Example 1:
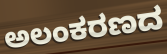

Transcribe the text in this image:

ಅಲಂಕರಣದ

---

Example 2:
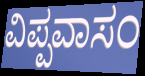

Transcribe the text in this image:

ವಿಪ್ಪವಾಸಂ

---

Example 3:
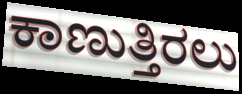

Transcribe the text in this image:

ಕಾಣುತ್ತಿರಲು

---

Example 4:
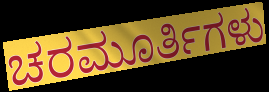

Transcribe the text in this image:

ಚರಮೂರ್ತಿಗಳು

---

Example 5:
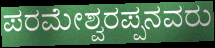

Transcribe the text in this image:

ಪರಮೇಶ್ವರಪ್ಪನವರು